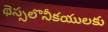
థెస్సలొనీకయులకు